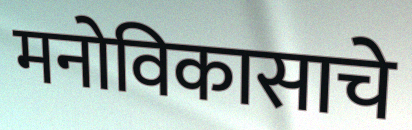
मनोविकासाचे